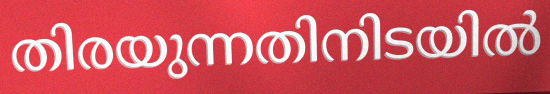
തിരയുന്നതിനിടയിൽ